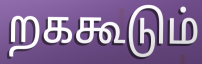
றககூடும்